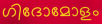
ഗിദോമോളം